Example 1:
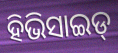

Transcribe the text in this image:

ହିଭିସାଇଡ୍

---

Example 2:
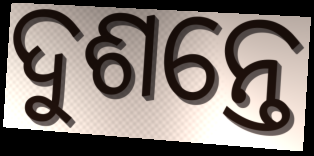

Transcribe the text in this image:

ଦୁଶନ୍ତେ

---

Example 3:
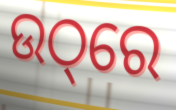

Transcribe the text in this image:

ଉଠ୍‌ରେ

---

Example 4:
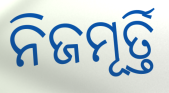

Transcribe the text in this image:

ନିଜମୂର୍ତ୍ତି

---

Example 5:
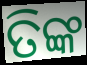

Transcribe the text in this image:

ତିଙ୍କ